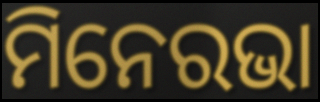
ମିନେରଭା